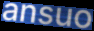
ansuo